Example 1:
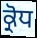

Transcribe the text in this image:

ਕ੍ਰੋਧ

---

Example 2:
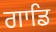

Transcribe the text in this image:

ਗਾਡਿ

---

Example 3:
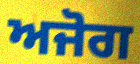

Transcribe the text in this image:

ਅਜੋਗ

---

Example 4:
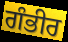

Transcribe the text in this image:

ਗੰਭੀਰ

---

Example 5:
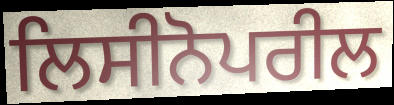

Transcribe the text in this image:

ਲਿਸੀਨੋਪਰੀਲ